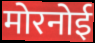
मोरनोई